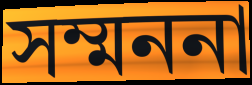
সম্মননা